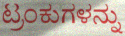
ಟ್ರಂಕುಗಳನ್ನು